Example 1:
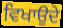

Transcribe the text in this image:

ਵਿਖਾਉਦੇ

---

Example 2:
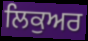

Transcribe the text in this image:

ਲਿਕੁਅਰ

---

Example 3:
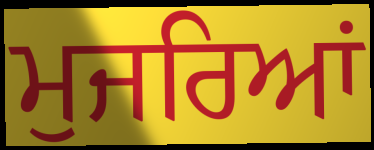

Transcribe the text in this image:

ਮੁਜਰਿਆਂ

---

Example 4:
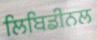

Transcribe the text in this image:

ਲਿਬਿਡੀਨਲ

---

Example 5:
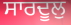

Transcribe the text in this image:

ਸਾਰਦੂਲੁ